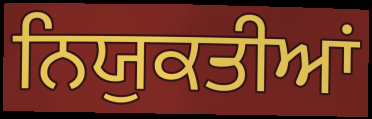
ਨਿਯੁਕਤੀਆਂ